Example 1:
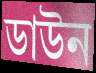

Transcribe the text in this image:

ডাউন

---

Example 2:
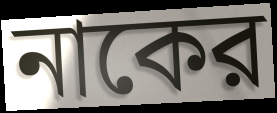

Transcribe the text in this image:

নাকের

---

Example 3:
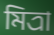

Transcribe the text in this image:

মিত্রা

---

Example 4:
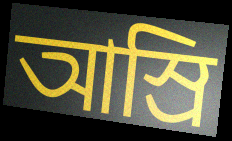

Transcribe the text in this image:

আস্রি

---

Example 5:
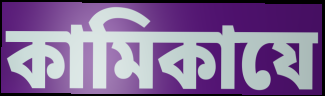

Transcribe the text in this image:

কামিকাযে